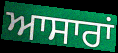
ਆਸਾਰਾਂ